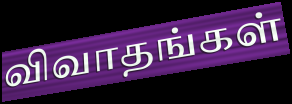
விவாதங்கள்